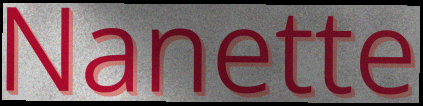
Nanette